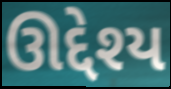
ઊદ્દેશ્ય